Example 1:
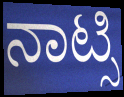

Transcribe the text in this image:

ನಾಟ್ಸಿ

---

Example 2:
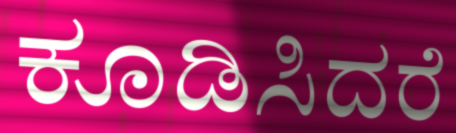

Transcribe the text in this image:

ಕೂಡಿಸಿದರೆ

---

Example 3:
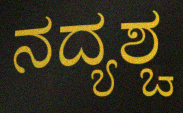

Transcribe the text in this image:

ನದ್ಯಶ್ಚ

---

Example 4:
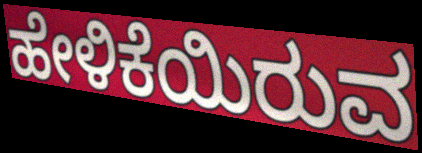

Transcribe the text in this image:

ಹೇಳಿಕೆಯಿರುವ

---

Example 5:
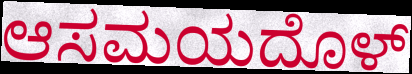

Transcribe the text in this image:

ಆಸಮಯದೊಳ್